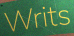
Writs